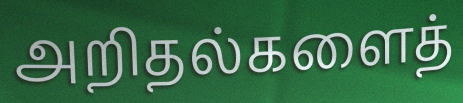
அறிதல்களைத்